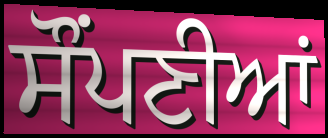
ਸੌਂਪਣੀਆਂ